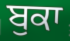
ਬੁਕਾ